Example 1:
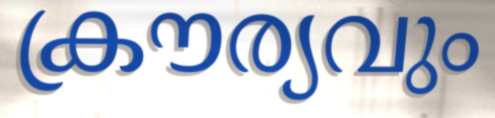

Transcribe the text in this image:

ക്രൗര്യവും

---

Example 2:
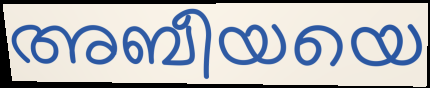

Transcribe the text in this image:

അബീയയെ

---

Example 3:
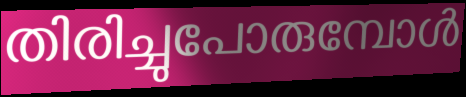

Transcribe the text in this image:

തിരിച്ചുപോരുമ്പോൾ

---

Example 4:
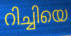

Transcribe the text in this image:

റിച്ചിയെ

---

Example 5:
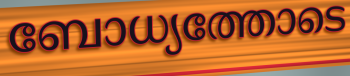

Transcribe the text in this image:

ബോധ്യത്തോടെ